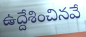
ఉద్దేశించినవే